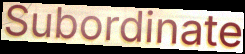
Subordinate